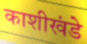
काशीखंडे